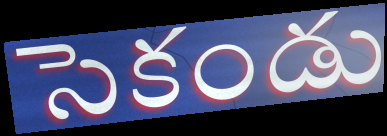
సెకండు